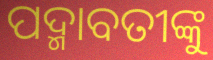
ପଦ୍ମାବତୀଙ୍କୁ